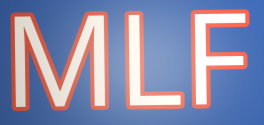
MLF